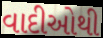
વાદીઓથી